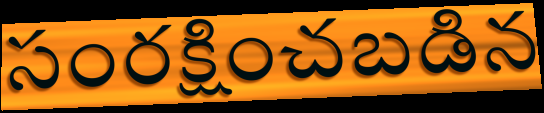
సంరక్షించబడిన